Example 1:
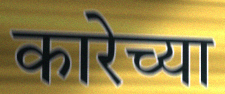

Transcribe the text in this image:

कारेच्या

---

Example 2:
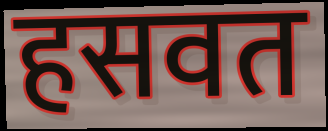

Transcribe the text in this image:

हसवत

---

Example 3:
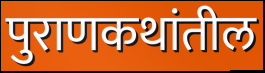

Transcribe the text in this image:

पुराणकथांतील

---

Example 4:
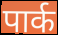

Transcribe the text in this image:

पार्क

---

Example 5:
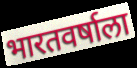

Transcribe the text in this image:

भारतवर्षाला